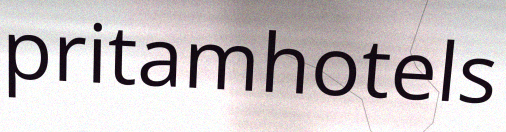
pritamhotels